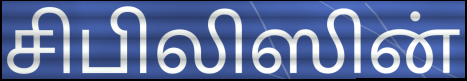
சிபிலிஸின்